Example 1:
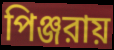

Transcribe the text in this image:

পিঞ্জরায়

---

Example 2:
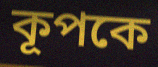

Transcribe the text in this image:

কূপকে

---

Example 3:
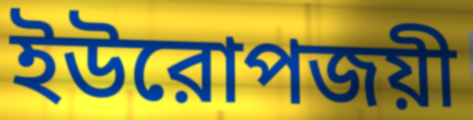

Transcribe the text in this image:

ইউরোপজয়ী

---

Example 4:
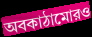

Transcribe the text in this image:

অবকাঠামোরও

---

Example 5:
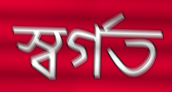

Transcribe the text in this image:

স্বর্গত